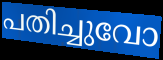
പതിച്ചുവോ